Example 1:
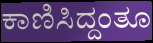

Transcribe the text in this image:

ಕಾಣಿಸಿದ್ದಂತೂ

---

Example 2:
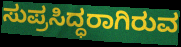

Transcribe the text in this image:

ಸುಪ್ರಸಿದ್ಧರಾಗಿರುವ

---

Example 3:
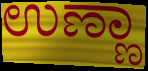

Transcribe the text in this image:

ಉಣ್ಣಾ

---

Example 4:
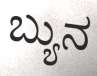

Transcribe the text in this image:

ಬ್ಯುನ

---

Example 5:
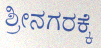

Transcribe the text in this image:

ಶ್ರೀನಗರಕ್ಕೆ